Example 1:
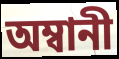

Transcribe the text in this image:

অম্বানী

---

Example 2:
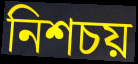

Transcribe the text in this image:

নিশচয়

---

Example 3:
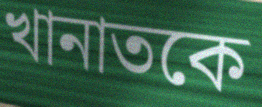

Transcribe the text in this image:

খানাতকে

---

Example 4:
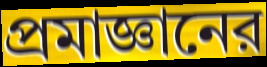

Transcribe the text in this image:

প্রমাজ্ঞানের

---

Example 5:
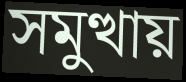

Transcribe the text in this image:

সমুত্থায়